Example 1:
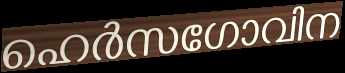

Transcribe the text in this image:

ഹെർസഗോവിന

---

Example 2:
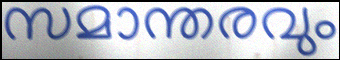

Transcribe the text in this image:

സമാന്തരവും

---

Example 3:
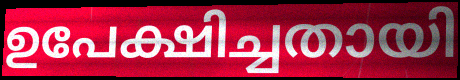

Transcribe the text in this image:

ഉപേക്ഷിച്ചതായി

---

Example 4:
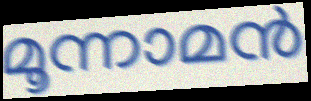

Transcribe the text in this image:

മൂന്നാമൻ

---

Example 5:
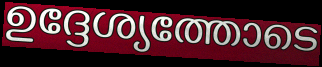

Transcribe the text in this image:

ഉദ്ദേശ്യത്തോടെ